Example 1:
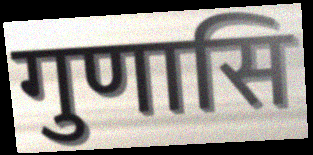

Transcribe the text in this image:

गुणासि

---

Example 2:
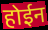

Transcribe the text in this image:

होईन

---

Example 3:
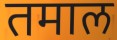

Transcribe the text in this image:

तमाल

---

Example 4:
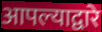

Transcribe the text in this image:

आपल्याद्वारे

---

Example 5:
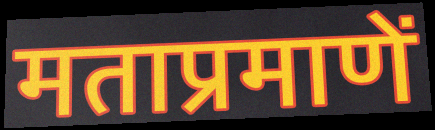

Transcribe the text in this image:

मताप्रमाणें